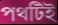
পথটিই